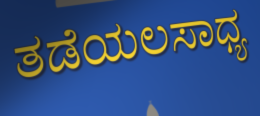
ತಡೆಯಲಸಾಧ್ಯ